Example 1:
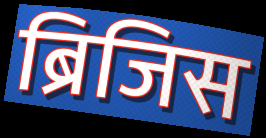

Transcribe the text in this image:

ब्रिजिस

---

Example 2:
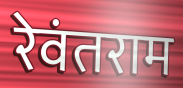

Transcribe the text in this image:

रेवंतराम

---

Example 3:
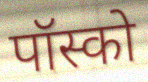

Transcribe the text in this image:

पॉस्को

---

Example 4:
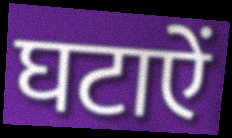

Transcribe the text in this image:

घटाऐं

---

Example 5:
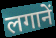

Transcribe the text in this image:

लगानें